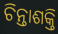
ଚିନ୍ତାଶକ୍ତି